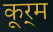
कूर्म